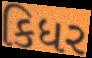
કિધર